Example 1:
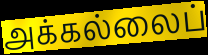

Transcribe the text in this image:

அக்கல்லைப்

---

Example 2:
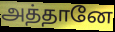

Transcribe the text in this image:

அத்தானே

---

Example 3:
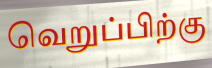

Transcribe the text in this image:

வெறுப்பிற்கு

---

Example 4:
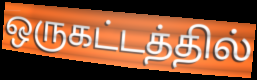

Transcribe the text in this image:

ஒருகட்டத்தில்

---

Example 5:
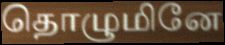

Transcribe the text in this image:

தொழுமினே